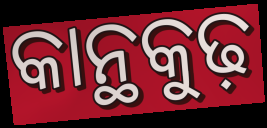
କାନ୍ଥକୁଢ଼